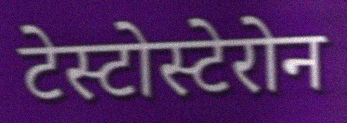
टेस्टोस्टेरोन